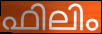
ഫിലിം